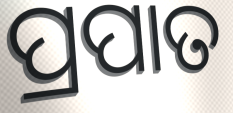
ପ୍ରପାତ